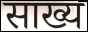
साख्य